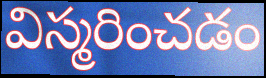
విస్మరించడం